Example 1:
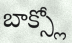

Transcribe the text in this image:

బాక్స్లో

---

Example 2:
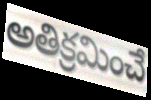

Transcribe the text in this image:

అతిక్రమించే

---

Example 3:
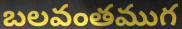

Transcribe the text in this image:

బలవంతముగ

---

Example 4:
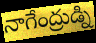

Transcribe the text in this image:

నాగేంద్రుడ్ని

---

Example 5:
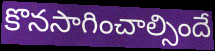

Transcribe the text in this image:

కొనసాగించాల్సిందే